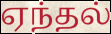
ஏந்தல்